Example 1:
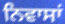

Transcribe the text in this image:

ਨਿਵਾਸਾਂ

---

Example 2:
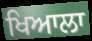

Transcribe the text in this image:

ਖਿਆਲਾ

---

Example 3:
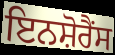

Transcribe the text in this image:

ਇਨਸ਼ੋਰੈਂਸ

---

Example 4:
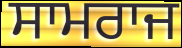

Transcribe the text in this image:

ਸਾਮਰਾਜ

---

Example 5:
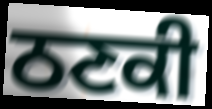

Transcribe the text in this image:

ਠਣਕੀ